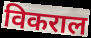
विकराल